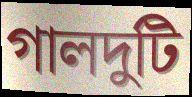
গালদুটি